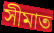
সীমাত